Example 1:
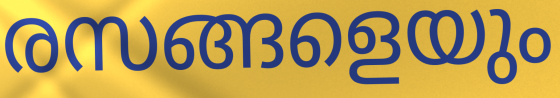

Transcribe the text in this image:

രസങ്ങളെയും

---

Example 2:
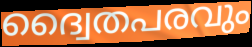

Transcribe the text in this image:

ദ്വൈതപരവും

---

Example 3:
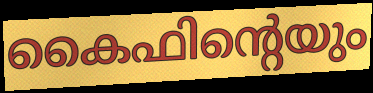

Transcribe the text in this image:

കൈഫിന്റെയും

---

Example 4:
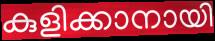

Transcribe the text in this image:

കുളിക്കാനായി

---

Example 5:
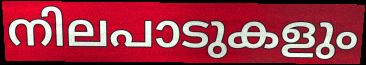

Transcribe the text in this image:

നിലപാടുകളും